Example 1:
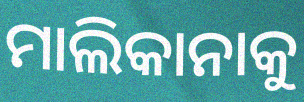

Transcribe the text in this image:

ମାଲିକାନାକୁ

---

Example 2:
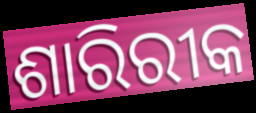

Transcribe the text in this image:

ଶାରିରୀକ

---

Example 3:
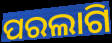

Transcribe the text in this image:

ପରଲାଗି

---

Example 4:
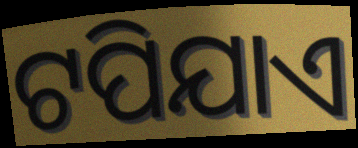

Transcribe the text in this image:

ଟପିଯାଏ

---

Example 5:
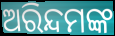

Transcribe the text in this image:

ଅରିନ୍ଦମଙ୍କ